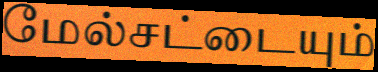
மேல்சட்டையும்